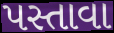
પસ્તાવા